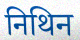
निथिन